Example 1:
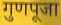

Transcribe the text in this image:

गुणपूजा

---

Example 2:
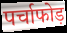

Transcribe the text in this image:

पर्चाफोड़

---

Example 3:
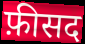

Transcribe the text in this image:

फ़ीसद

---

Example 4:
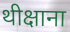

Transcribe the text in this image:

थीक्षाना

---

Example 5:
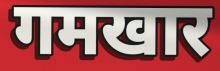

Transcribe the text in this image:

गमखार